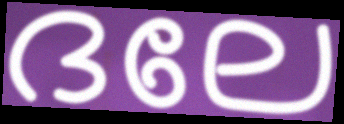
ദലേ